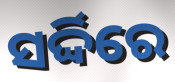
ସର୍ଦ୍ଦିରେ